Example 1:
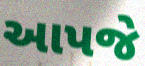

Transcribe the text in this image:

આપજે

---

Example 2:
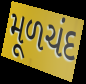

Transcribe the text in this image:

મૂળચંદ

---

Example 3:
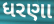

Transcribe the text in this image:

ધરણા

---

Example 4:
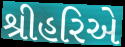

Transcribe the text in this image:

શ્રીહરિએ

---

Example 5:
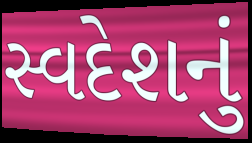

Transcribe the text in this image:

સ્વદેશનું